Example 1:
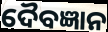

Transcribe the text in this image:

ଦୈବଜ୍ଞାନ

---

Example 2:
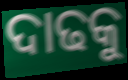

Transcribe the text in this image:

ଦାଢକୁ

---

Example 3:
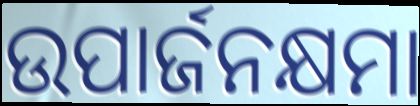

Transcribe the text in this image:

ଉପାର୍ଜନକ୍ଷମା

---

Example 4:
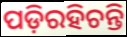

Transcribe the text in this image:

ପଡ଼ିରହିଚନ୍ତି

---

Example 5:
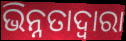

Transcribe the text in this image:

ଭିନ୍ନତାଦ୍ୱାରା